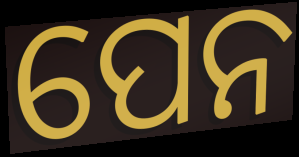
ପେନ